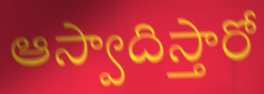
ఆస్వాదిస్తారో